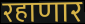
रहाणार